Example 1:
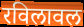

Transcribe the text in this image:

रविलावल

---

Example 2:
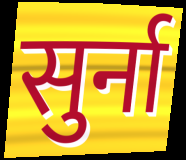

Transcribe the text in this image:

सुर्ना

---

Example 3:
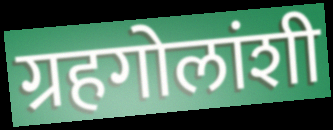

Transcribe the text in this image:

ग्रहगोलांशी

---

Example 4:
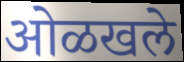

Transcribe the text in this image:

ओळखले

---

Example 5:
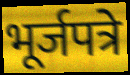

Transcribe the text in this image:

भूर्जपत्रे